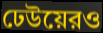
ঢেউয়েরও